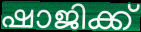
ഷാജിക്ക്